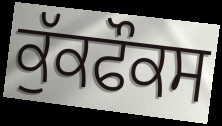
ਕੁੱਕਫੌਕਸ